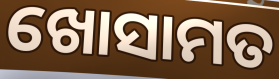
ଖୋସାମତ